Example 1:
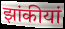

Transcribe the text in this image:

झांकीयां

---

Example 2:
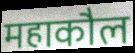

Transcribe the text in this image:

महाकौल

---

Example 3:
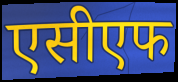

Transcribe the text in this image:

एसीएफ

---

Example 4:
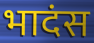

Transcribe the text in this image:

भादंस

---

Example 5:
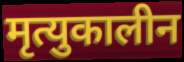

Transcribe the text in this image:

मृत्युकालीन